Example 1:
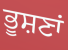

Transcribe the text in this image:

ਭੂਸ਼ਣਾਂ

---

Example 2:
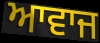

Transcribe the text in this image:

ਆਵਾਜ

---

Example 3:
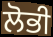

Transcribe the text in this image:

ਲੋਭੀ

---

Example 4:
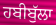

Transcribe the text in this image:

ਹਬੀਬੁੱਲਾ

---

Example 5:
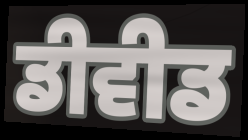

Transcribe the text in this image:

ਡੀਵੀਡ